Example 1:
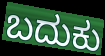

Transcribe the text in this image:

ಬದುಕು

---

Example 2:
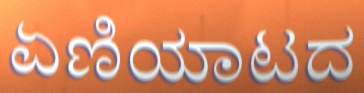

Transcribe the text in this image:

ಏಣಿಯಾಟದ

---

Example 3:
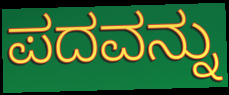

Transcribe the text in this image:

ಪದವನ್ನು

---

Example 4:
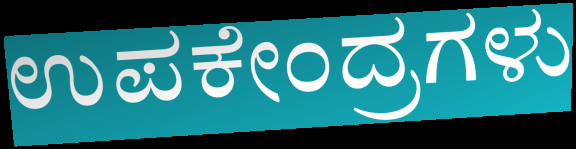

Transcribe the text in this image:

ಉಪಕೇಂದ್ರಗಳು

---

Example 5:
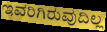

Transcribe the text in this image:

ಇವರಿಗಿರುವುದಿಲ್ಲ